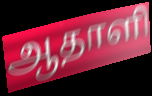
ஆதாளி